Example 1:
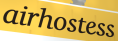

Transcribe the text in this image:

airhostess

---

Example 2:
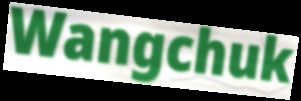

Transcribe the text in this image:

Wangchuk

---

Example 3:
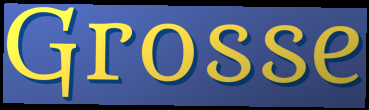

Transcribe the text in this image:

Grosse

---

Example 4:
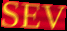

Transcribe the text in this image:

SEV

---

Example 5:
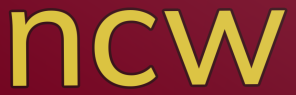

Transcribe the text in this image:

ncw